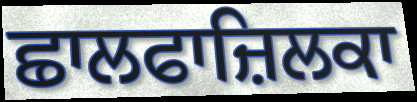
ਛਾਲਫਾਜ਼ਿਲਕਾ